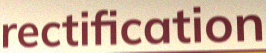
rectification